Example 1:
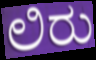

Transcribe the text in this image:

ಲಿರು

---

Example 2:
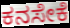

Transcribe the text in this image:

ಕನಸೇಕೆ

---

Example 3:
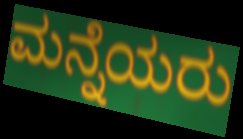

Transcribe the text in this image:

ಮನ್ನೆಯರು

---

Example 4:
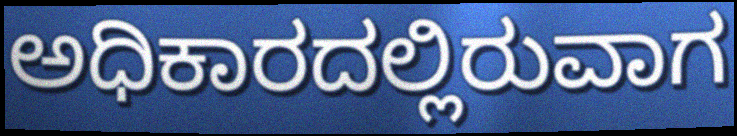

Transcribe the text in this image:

ಅಧಿಕಾರದಲ್ಲಿರುವಾಗ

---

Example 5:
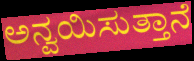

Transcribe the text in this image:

ಅನ್ವಯಿಸುತ್ತಾನೆ